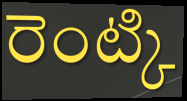
రెంట్కి